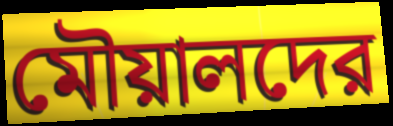
মৌয়ালদের